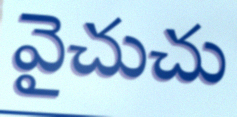
వైచుచు